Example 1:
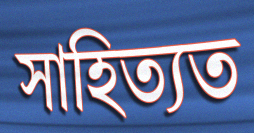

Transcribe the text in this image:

সাহিত্যত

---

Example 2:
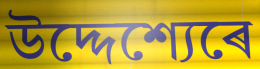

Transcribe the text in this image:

উদ্দেশ্যেৰে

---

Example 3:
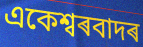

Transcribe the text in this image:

একেশ্বৰবাদৰ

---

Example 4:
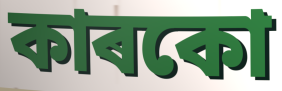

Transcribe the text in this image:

কাৰকো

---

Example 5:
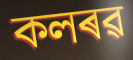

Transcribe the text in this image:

কলৰৱ